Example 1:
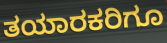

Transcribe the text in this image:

ತಯಾರಕರಿಗೂ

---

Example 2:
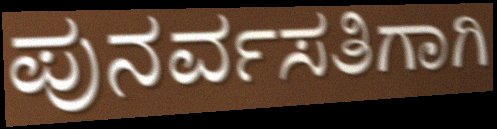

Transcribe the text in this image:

ಪುನರ್ವಸತಿಗಾಗಿ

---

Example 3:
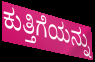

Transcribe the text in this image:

ಕುತ್ತಿಗೆಯನ್ನು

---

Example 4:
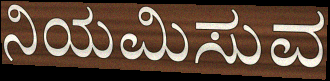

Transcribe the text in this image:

ನಿಯಮಿಸುವ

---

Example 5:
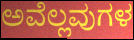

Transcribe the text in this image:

ಅವೆಲ್ಲವುಗಳ